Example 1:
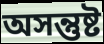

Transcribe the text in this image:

অসন্তুষ্ট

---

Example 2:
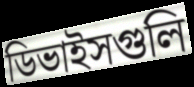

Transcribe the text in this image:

ডিভাইসগুলি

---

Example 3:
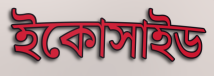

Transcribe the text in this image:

ইকোসাইড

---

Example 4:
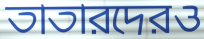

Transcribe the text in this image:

তাতারদেরও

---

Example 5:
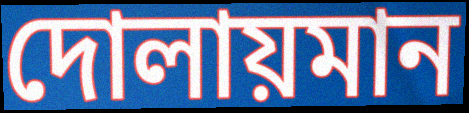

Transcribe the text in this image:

দোলায়মান